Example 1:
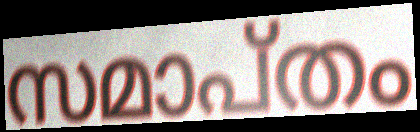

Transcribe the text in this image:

സമാപ്തം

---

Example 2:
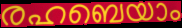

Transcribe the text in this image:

രഹബെയാം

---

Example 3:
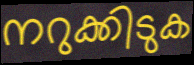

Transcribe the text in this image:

നറുക്കിടുക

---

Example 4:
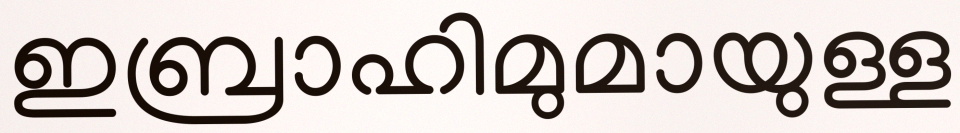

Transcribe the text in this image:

ഇബ്രാഹിമുമായുള്ള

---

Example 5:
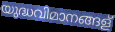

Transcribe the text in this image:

യുദ്ധവിമാനങ്ങള്